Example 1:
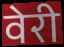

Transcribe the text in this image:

वेरी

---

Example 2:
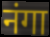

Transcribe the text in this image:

नंगा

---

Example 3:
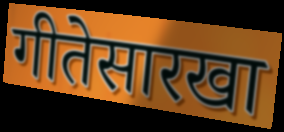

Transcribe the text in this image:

गीतेसारखा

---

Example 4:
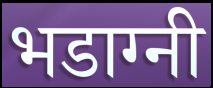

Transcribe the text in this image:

भडाग्नी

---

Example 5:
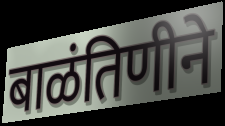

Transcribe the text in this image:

बाळंतिणीने